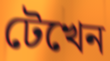
টেখেন